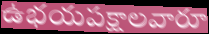
ఉభయపక్షాలవారూ